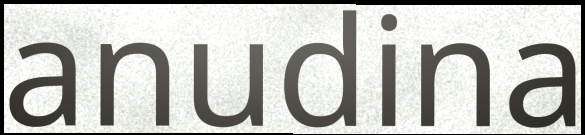
anudina